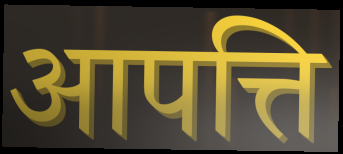
आपत्ति